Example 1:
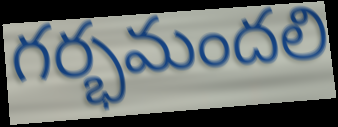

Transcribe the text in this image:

గర్భమందలి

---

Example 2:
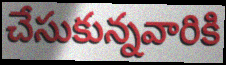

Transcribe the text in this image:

చేసుకున్నవారికి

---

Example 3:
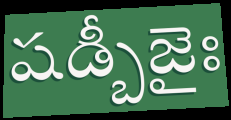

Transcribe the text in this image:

షడ్బీజైః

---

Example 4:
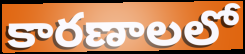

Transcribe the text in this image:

కారణాలలో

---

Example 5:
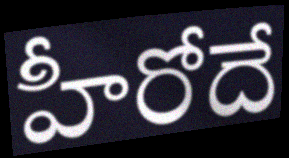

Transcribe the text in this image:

హీరోదే